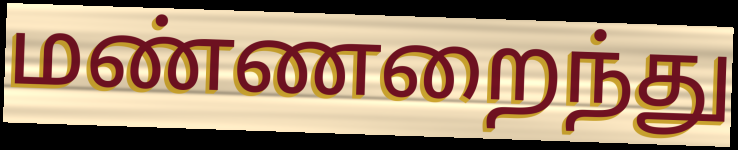
மண்ணறைந்து